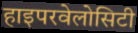
हाइपरवेलोसिटी